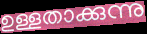
ഉള്ളതാക്കുന്നു